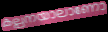
കല്പനയാലാണോ